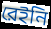
রেইনি